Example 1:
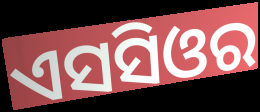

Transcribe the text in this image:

ଏସସିଓର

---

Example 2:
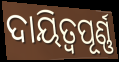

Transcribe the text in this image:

ଦାୟିତ୍ୱପୂର୍ଣ୍ଣ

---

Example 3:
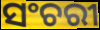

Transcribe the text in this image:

ସଂଚରୀ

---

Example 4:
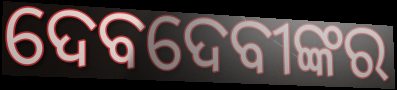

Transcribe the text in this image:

ଦେବଦେବୀଙ୍କର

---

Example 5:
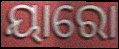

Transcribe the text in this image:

ୟାରୋ